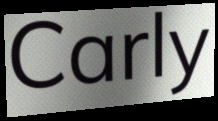
Carly